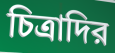
চিত্রাদির